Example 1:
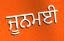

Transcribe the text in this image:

ਜੂਨਮਈ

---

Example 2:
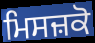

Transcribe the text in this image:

ਮਿਸਜ਼ਕੋ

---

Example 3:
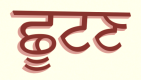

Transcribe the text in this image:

ਛੂਟਣ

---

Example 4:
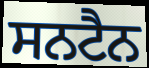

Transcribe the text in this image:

ਸਨਟੈਨ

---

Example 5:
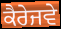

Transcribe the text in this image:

ਕੈਰੇਜਵੇ